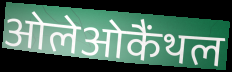
ओलेओकैंथल